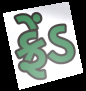
ફ્રેંડ